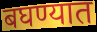
बघण्यात